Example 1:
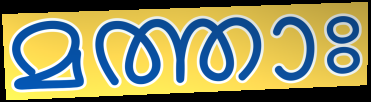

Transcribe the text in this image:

മത്താഃ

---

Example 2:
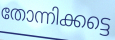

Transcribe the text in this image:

തോന്നിക്കട്ടെ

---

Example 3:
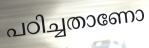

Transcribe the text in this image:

പഠിച്ചതാണോ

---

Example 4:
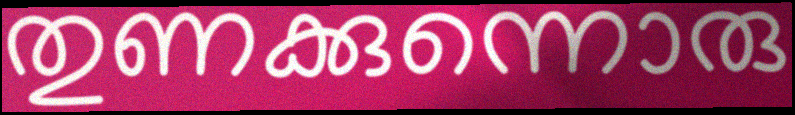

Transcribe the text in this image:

തുണക്കുന്നൊരു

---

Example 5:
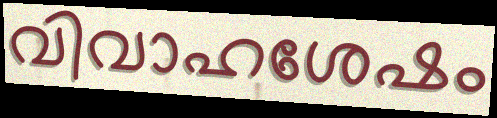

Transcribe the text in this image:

വിവാഹശേഷം